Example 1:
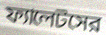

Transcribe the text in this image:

ফ্যালেটসের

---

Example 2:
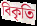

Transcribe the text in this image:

বিকৃতি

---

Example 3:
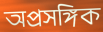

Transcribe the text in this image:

অপ্রসঙ্গিক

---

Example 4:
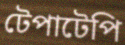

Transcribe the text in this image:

টেপাটেপি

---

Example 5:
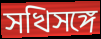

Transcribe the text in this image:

সখিসঙ্গে